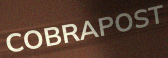
COBRAPOST